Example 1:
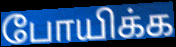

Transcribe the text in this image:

போயிக்க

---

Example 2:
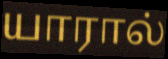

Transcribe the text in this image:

யாரால்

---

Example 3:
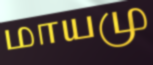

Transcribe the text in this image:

மாயமு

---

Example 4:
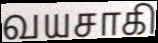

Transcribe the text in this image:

வயசாகி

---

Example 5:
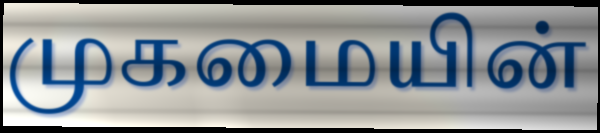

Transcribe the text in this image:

முகமையின்